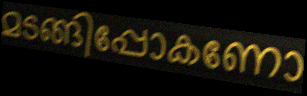
മടങ്ങിപ്പോകണോ